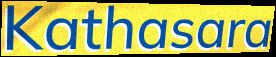
Kathasara